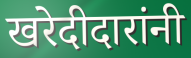
खरेदीदारांनी